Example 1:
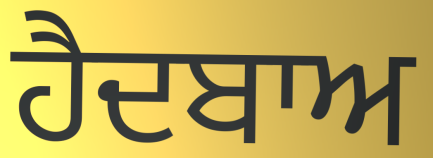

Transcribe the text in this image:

ਹੈਦਬਾਅ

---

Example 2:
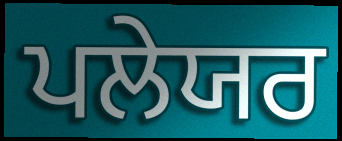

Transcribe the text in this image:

ਪਲੇਯਰ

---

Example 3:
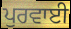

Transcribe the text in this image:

ਪੁਰਵਾਈ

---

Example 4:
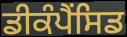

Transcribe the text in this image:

ਡੀਕੰਪੈਂਸਿਡ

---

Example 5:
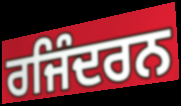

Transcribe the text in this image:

ਰਜਿੰਦਰਨ